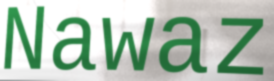
Nawaz